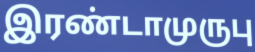
இரண்டாமுருபு